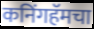
कनिंगहॅमचा